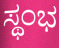
ಸ್ಥಂಭ